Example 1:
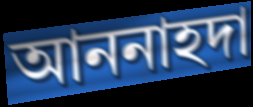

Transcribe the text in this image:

আননাহদা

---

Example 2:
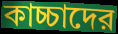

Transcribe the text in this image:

কাচ্চাদের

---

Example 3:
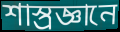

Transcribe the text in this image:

শাস্ত্রজ্ঞানে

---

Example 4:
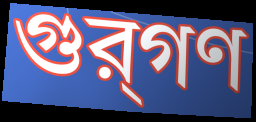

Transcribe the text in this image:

গুর্‌গণ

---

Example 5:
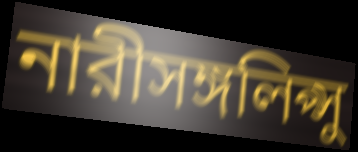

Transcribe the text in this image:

নারীসঙ্গলিপ্সু